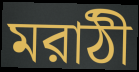
মরাঠী